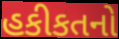
હકીકતનો